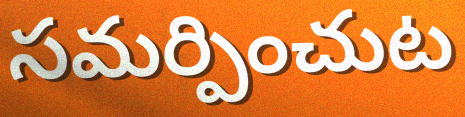
సమర్పించుట